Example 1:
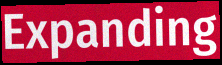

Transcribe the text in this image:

Expanding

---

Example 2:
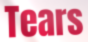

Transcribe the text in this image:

Tears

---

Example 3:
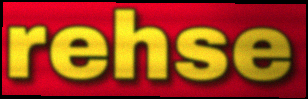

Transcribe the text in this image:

rehse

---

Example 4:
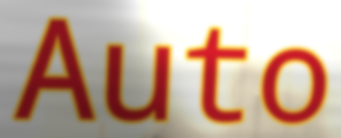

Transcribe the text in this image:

Auto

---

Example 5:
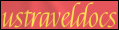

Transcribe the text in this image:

ustraveldocs